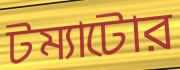
টম্যাটোর